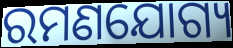
ରମଣଯୋଗ୍ୟ